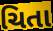
ચિતા